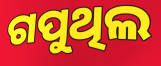
ଗପୁଥିଲ